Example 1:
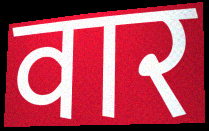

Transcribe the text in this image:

वार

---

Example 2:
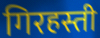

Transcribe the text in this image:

गिरहस्ती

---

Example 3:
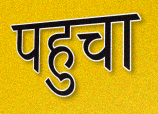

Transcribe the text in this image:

पहुचा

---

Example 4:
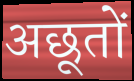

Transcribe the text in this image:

अछूतों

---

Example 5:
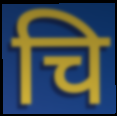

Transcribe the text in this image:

चि